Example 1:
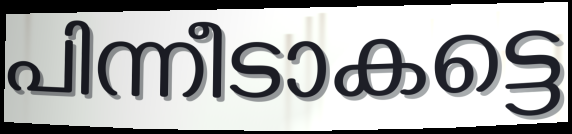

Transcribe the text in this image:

പിന്നീടാകട്ടെ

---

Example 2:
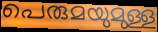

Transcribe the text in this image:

പെരുമയുമുള്ള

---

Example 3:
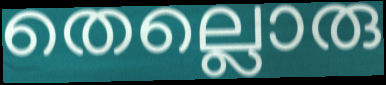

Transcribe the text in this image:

തെല്ലൊരു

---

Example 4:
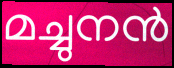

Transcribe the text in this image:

മച്ചുനൻ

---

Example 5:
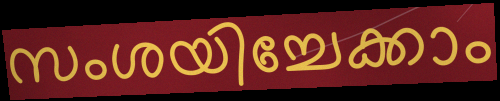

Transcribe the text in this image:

സംശയിച്ചേക്കാം